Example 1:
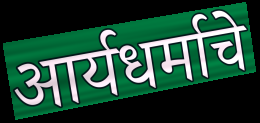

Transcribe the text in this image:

आर्यधर्माचे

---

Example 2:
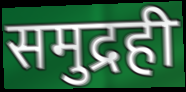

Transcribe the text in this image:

समुद्रही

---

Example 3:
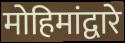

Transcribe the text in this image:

मोहिमांद्वारे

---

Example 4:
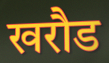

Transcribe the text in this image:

खरौड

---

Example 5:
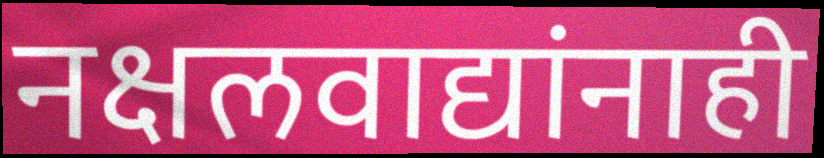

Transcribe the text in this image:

नक्षलवाद्यांनाही